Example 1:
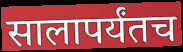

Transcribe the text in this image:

सालापर्यंतच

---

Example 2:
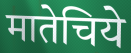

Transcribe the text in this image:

मातेचिये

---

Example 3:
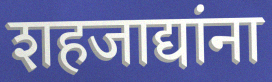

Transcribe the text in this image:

शहजाद्यांना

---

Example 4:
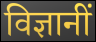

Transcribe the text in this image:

विज्ञानीं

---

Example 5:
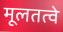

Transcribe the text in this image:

मूलतत्वे